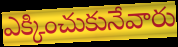
ఎక్కించుకునేవారు